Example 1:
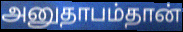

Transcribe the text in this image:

அனுதாபம்தான்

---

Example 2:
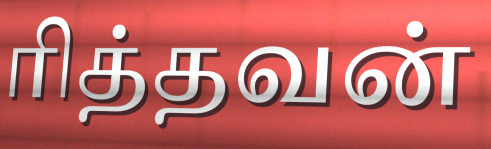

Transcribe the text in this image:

ரித்தவன்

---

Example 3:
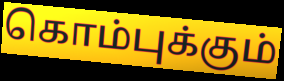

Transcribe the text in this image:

கொம்புக்கும்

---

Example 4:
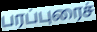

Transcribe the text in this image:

பரப்புரைச்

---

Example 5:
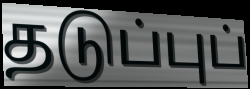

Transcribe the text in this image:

தடுப்புப்